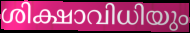
ശിക്ഷാവിധിയും